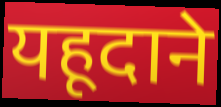
यहूदाने